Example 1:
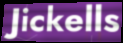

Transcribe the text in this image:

Jickells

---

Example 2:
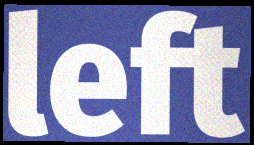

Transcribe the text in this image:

left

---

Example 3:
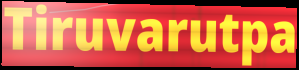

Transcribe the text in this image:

Tiruvarutpa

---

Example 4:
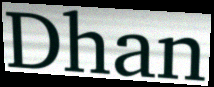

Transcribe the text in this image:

Dhan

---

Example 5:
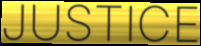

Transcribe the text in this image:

JUSTICE